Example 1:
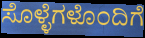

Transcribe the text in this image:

ಸೊಳ್ಳೆಗಳೊಂದಿಗೆ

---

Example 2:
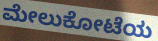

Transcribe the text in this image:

ಮೇಲುಕೋಟೆಯ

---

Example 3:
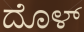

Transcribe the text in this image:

ದೊಳ್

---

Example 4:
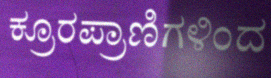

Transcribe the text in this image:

ಕ್ರೂರಪ್ರಾಣಿಗಳಿಂದ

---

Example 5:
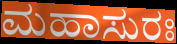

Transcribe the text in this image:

ಮಹಾಸುರಃ